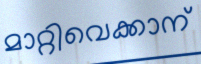
മാറ്റിവെക്കാന്